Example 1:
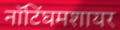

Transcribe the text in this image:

नॉटिंघमशायर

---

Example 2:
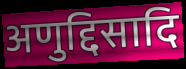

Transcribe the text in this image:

अणुद्दिसादि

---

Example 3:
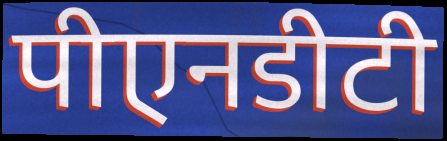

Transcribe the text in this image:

पीएनडीटी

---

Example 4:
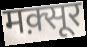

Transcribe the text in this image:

मक़्सूर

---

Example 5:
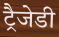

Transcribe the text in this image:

ट्रैजेडी